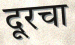
दूरचा